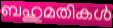
ബഹുമതികൾ